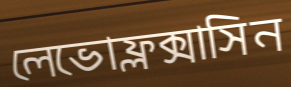
লেভোফ্লক্সাসিন